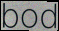
bod